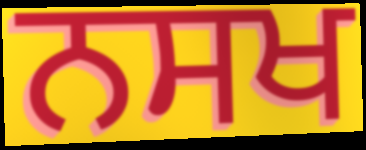
ਨਸਖ